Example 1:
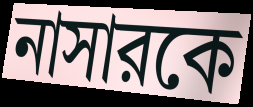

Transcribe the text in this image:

নাসারকে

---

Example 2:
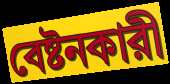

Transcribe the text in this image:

বেষ্টনকারী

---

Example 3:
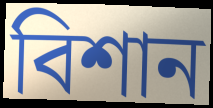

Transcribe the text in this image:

বিশান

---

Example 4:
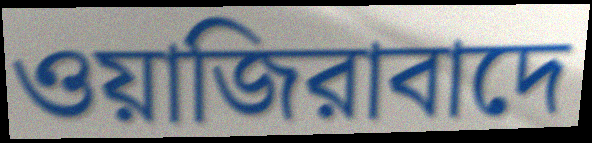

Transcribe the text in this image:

ওয়াজিরাবাদে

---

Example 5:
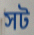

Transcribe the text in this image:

সট